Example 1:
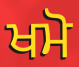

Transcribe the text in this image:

ਖਮੋ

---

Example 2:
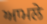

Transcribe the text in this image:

ਆਮਲੇ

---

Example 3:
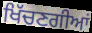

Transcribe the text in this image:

ਖਿੱਚਣਗੀਆਂ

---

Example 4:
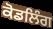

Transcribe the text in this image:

ਕੋਡਲਿੰਗ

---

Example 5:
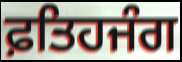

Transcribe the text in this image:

ਫ਼ਤਿਹਜੰਗ